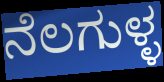
ನೆಲಗುಳ್ಳ